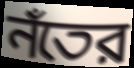
নঁতের